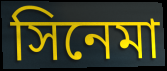
সিনেমা